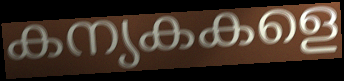
കന്യകകളെ